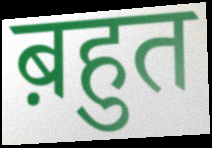
ब़हुत